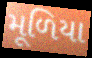
મૂળિયા